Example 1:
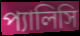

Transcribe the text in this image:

প্যালিসি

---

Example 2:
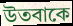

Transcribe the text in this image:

উতবাকে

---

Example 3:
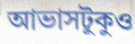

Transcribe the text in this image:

আভাসটুকুও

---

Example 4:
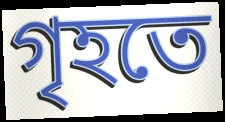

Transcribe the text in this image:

গৃহতে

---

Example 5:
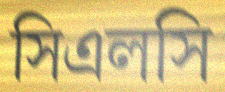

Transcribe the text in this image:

সিএলসি